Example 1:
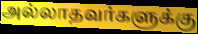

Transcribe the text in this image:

அல்லாதவர்களுக்கு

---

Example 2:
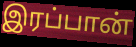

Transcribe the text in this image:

இரப்பான்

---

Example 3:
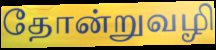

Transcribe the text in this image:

தோன்றுவழி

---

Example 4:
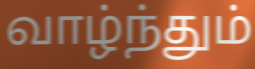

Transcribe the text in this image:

வாழ்ந்தும்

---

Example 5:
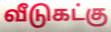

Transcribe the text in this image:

வீடுகட்கு